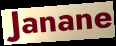
Janane